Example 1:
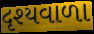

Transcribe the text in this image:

દૃશ્યવાળા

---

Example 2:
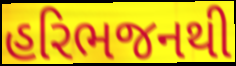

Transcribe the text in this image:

હરિભજનથી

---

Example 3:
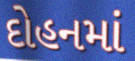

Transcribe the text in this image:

દોહનમાં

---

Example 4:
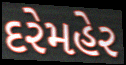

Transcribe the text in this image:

દરેમહેર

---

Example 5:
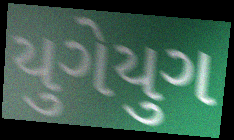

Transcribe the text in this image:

યુગેયુગ